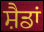
ਸ਼ੈਡਾਂ